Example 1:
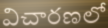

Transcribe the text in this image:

విచారణలో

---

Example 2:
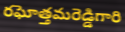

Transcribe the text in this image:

రఘోత్తమరెడ్డిగారి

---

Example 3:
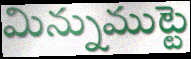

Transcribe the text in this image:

మిన్నుముట్టె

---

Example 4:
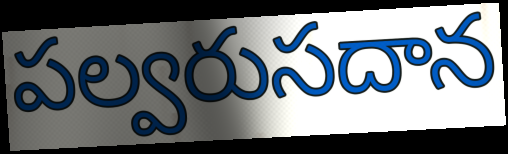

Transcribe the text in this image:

పల్వరుసదాన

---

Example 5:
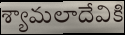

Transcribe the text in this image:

శ్యామలాదేవికి